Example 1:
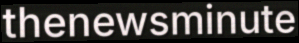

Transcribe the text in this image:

thenewsminute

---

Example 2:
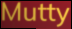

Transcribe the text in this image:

Mutty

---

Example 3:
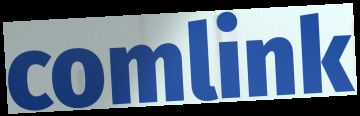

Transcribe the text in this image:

comlink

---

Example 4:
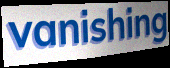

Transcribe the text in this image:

vanishing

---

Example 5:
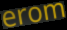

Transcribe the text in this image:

erom